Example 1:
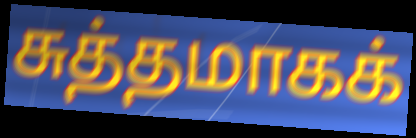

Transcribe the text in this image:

சுத்தமாகக்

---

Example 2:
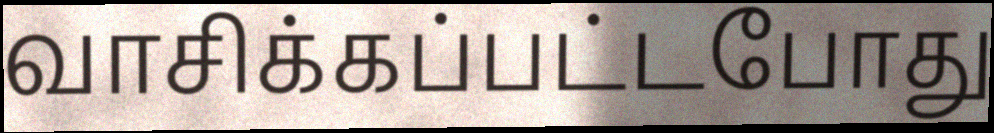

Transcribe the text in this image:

வாசிக்கப்பட்டபோது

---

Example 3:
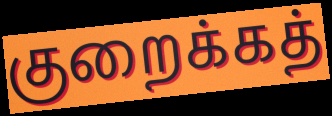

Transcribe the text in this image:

குறைக்கத்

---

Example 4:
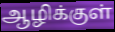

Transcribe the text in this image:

ஆழிக்குள்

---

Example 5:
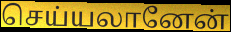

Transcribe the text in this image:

செய்யலானேன்